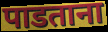
पाडताना